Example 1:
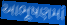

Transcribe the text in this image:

આભૂષણમાં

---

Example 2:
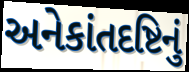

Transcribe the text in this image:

અનેકાંતદષ્ટિનું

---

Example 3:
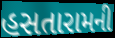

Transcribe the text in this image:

હસતારામની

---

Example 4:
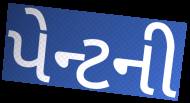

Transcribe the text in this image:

પેન્ટની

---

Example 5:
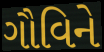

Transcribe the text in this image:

ગૌવિને